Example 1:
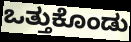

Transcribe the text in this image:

ಒತ್ತುಕೊಂಡು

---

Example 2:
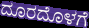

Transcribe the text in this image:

ದೂರದೊಳಗೆ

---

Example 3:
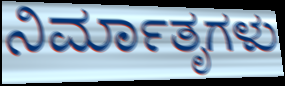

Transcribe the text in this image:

ನಿರ್ಮಾತೃಗಳು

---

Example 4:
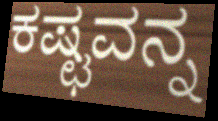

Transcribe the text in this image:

ಕಷ್ಟವನ್ನ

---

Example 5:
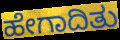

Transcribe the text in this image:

ಹೇಗಾದಿತು